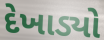
દેખાડ્યો